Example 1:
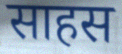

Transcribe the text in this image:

साहस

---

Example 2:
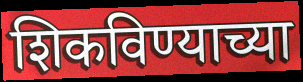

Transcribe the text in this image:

शिकविण्याच्या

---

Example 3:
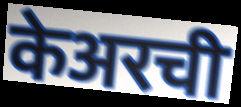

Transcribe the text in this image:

केअरची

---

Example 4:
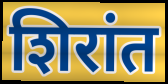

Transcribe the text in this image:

शिरांत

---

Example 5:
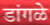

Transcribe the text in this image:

डांगळे